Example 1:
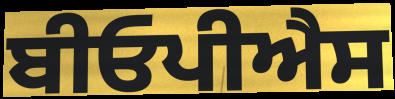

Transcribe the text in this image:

ਬੀਓਪੀਐਸ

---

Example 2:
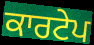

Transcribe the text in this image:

ਕਾਰਟੇਪ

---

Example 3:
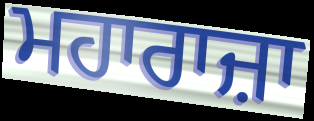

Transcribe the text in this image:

ਮਹਾਰਾਜ਼ਾ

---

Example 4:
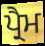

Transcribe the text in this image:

ਪ੍ਰੈਮ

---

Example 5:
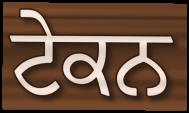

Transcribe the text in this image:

ਟੇਕਨ